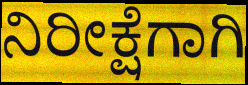
ನಿರೀಕ್ಷೆಗಾಗಿ